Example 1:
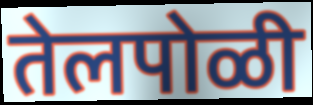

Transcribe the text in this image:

तेलपोळी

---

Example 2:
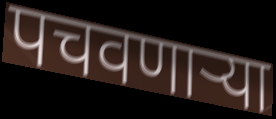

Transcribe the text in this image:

पचवणाऱ्या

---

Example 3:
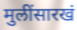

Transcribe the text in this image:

मुलींसारखं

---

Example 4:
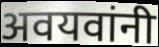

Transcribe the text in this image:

अवयवांनी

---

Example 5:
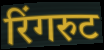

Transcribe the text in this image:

रिंगरुट